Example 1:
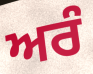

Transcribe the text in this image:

ਅਰੰ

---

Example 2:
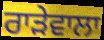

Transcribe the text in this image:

ਰਾੜੇਵਾਲਾ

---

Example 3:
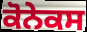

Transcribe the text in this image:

ਕੋਨੇਕਸ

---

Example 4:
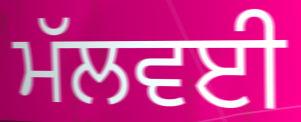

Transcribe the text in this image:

ਮੱਲਵਈ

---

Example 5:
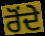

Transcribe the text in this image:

ਰੋਂਦੇ